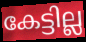
കേട്ടില്ല